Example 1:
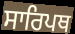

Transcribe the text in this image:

ਸਾਰਿਪਥ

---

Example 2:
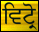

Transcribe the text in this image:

ਵਿਟ੍ਰੋ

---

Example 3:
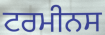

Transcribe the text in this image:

ਟਰਮੀਨਸ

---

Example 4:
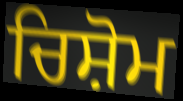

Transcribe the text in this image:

ਚਿਸ਼ੋਮ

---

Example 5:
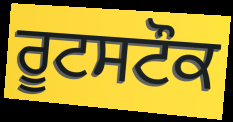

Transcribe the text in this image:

ਰੂਟਸਟੌਕ